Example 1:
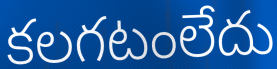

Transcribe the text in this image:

కలగటంలేదు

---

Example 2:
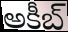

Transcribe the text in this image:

అకీబ్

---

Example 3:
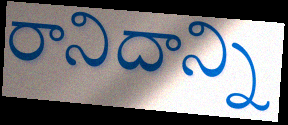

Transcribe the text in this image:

రానిదాన్ని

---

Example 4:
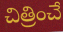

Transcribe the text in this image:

చిత్రించే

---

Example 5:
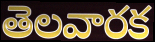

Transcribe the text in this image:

తెలవారక